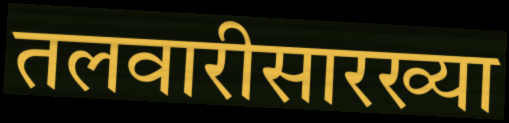
तलवारीसारख्या